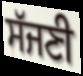
ਸੱਜਣੀ